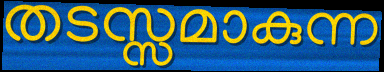
തടസ്സമാകുന്ന